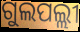
ଗୁଲପଲ୍ଲୀ